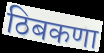
ठिबकणा